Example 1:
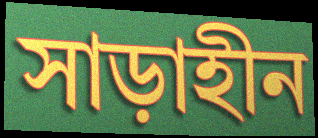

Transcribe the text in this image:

সাড়াহীন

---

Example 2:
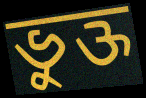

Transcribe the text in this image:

ভুক্ত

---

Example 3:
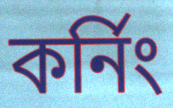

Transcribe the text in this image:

কর্নিং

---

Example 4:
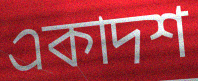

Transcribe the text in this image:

একাদশ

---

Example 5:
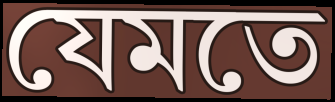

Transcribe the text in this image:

যেমতে